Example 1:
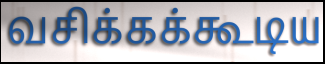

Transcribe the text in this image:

வசிக்கக்கூடிய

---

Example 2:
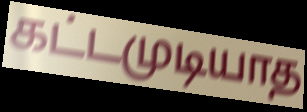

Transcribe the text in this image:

கட்டமுடியாத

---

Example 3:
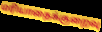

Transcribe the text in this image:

மரியாதைக்குறைவு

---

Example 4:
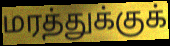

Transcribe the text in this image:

மரத்துக்குக்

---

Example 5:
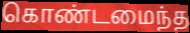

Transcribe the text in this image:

கொண்டமைந்த